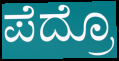
ಪೆದ್ರೊ